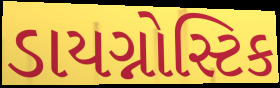
ડાયગ્નોસ્ટિક